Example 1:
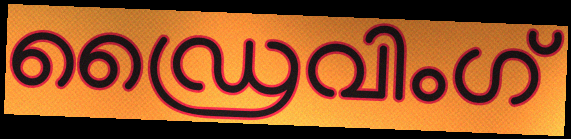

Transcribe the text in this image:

ഡ്രൈവിംഗ്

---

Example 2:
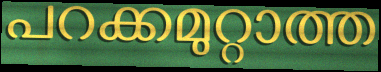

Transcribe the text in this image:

പറക്കമുറ്റാത്ത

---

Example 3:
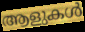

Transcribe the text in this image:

ആളുകൾ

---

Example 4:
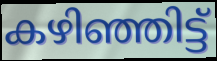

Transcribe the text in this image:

കഴിഞ്ഞിട്ട്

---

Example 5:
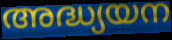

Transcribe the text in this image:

അദ്ധ്യയന